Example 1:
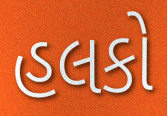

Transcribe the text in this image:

હલકો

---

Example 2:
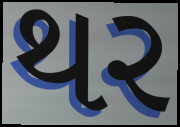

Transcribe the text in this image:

થર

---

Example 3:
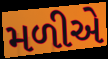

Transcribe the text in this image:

મળીએ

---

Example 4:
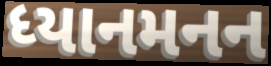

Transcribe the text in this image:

ધ્યાનમનન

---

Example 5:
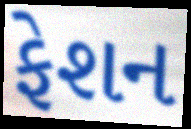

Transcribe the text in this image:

ફેશન